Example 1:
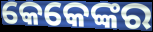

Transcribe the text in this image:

କେକେଙ୍କର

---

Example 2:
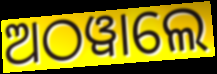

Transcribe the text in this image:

ଅଠୱାଲେ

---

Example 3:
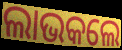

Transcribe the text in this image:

ଲାଭକଲେ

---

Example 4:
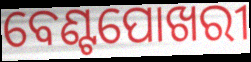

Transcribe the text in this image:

ବେଣ୍ଟପୋଖରୀ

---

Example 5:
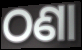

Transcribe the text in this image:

ଠଣା